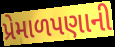
પ્રેમાળપણાની